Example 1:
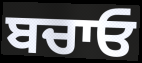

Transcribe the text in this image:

ਬਚਾਓ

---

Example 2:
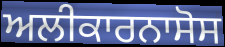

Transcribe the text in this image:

ਅਲੀਕਾਰਨਾਸੋਸ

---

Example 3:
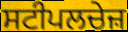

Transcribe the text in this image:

ਸਟੀਪਲਚੇਜ਼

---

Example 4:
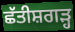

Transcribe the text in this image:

ਛੱਤੀਸ਼ਗੜ੍ਹ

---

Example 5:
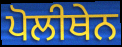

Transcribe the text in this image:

ਪੋਲੀਥੇਨ